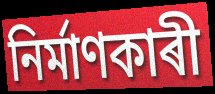
নিৰ্মাণকাৰী